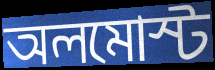
অলমোস্ট